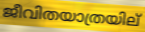
ജീവിതയാത്രയില്